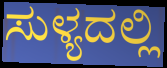
ಸುಳ್ಯದಲ್ಲಿ